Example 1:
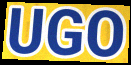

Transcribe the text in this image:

UGO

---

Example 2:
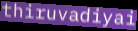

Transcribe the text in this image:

thiruvadiyai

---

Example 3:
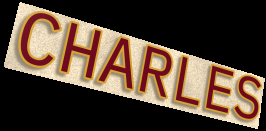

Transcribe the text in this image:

CHARLES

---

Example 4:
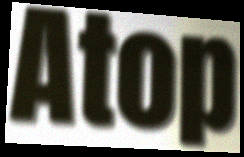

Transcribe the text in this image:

Atop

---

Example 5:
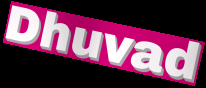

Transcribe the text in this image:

Dhuvad